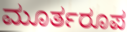
ಮೂರ್ತರೂಪ